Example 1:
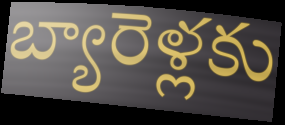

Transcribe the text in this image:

బ్యారెళ్లకు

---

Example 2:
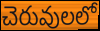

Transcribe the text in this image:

చెరువులలో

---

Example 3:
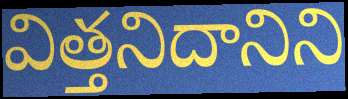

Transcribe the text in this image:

విత్తనిదానిని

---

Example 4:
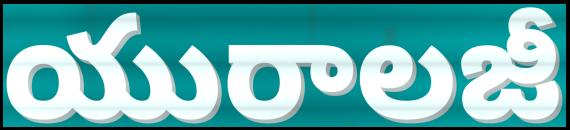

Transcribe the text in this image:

యురాలజీ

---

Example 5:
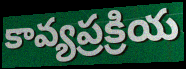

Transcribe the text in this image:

కావ్యప్రక్రియ